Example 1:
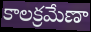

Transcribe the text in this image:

కాలక్రమేణా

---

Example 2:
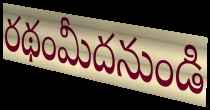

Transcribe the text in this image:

రథంమీదనుండి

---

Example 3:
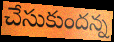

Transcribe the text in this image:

చేసుకుందన్న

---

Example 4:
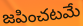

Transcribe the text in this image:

జపించటమే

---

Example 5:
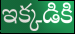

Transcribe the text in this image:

ఇక్కడికి